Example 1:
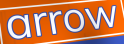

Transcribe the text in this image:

arrow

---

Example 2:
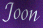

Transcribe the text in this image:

Joon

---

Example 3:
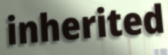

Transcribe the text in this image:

inherited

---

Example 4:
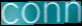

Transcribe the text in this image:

conn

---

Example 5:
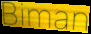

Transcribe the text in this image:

Biman